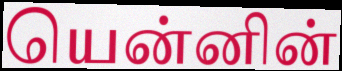
யென்னின்